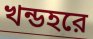
খন্ডহরে